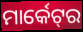
ମାର୍କେଟ୍‌ର